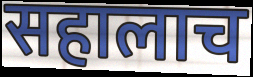
सहालाच